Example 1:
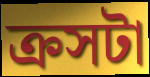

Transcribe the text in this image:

ক্রসটা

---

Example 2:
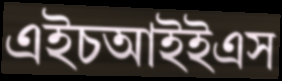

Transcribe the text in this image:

এইচআইইএস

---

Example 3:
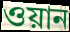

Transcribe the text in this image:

ওয়ান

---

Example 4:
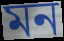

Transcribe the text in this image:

মন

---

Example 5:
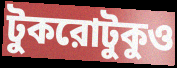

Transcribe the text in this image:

টুকরোটুকুও